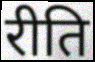
रीति